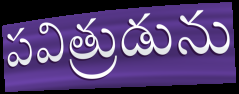
పవిత్రుడును